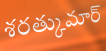
శరత్కుమార్